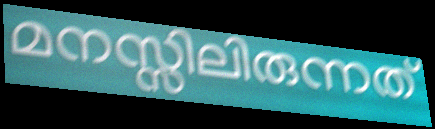
മനസ്സിലിരുന്നത്